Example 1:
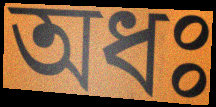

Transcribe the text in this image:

অধঃ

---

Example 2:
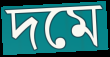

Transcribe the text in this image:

দমে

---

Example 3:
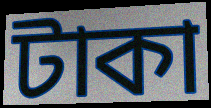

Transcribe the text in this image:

টাকা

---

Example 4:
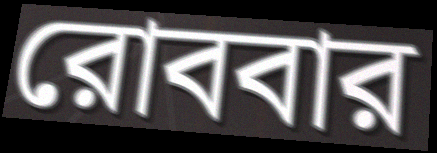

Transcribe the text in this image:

রোববার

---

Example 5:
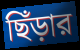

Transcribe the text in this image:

ছিঁড়ার